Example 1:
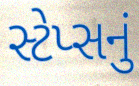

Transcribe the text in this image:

સ્ટેપ્સનું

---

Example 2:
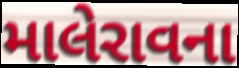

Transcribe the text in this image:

માલેરાવના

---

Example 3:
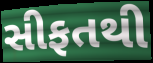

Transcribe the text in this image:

સીફતથી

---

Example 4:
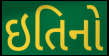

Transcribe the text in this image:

ઇતિનો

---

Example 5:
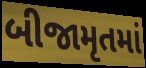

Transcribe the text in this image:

બીજામૃતમાં